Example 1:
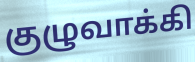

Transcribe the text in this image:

குழுவாக்கி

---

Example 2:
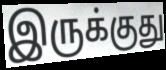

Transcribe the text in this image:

இருக்குது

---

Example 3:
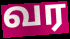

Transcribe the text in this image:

வர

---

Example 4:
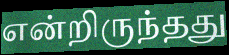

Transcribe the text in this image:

என்றிருந்தது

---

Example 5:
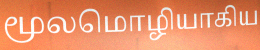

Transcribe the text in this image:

மூலமொழியாகிய